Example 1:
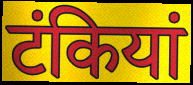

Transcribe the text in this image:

टंकियां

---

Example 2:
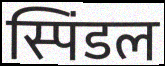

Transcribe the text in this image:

स्पिंडल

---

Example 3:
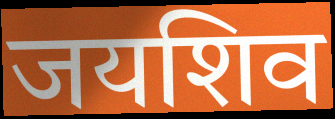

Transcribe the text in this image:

जयशिव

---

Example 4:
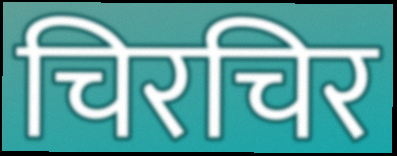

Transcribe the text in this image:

चिरचिर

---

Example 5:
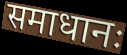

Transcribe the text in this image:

समाधानः